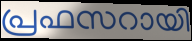
പ്രഫസറായി